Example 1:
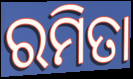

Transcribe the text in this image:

ରମିତା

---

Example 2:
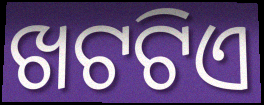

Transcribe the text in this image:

ଖଟଟିଏ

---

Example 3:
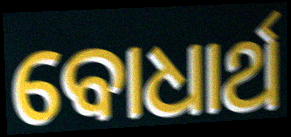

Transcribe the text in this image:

ବୋଧାର୍ଥ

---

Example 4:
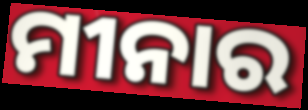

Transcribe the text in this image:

ମୀନାର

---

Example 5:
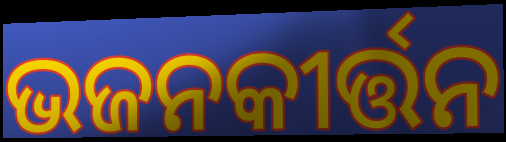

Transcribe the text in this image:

ଭଜନକୀର୍ତ୍ତନ